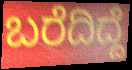
ಬರೆದಿದ್ದೆ